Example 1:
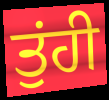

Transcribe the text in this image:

ਤੁਂਹੀ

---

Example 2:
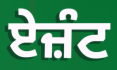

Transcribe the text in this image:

ਏਜ਼ੰਟ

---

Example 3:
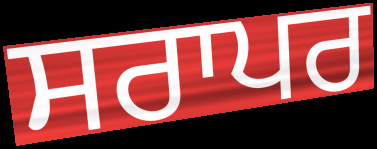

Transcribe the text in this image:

ਸਰਾਪਰ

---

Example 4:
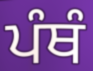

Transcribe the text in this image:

ਪੰਥੰ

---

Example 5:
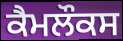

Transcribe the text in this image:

ਕੈਮਲੌਕਸ